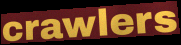
crawlers